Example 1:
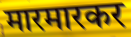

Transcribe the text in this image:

मारमारकर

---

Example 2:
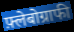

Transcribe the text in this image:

फ़्लेबोग्राफी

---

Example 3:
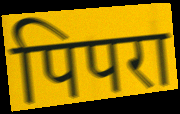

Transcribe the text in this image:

पिपरा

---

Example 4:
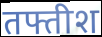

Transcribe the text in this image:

तफ्तीश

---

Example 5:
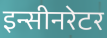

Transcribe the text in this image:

इन्सीनरेटर